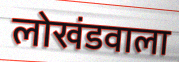
लोखंडवाला